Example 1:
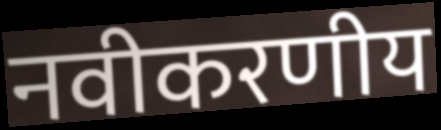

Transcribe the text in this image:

नवीकरणीय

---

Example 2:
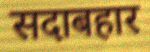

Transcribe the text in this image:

सदाबहार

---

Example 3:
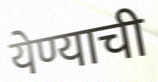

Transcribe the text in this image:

येण्याची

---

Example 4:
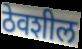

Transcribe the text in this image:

ठेवशील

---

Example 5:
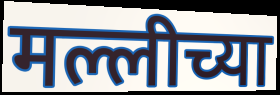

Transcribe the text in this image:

मल्लीच्या